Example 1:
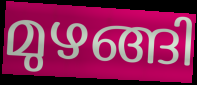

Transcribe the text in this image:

മുഴങ്ങി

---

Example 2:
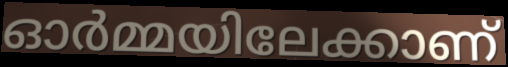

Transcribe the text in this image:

ഓർമ്മയിലേക്കാണ്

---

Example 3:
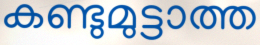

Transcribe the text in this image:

കണ്ടുമുട്ടാത്ത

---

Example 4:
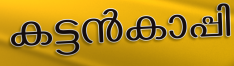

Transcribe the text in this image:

കട്ടൻകാപ്പി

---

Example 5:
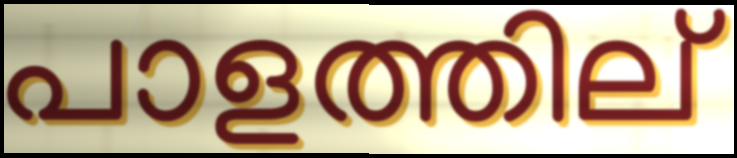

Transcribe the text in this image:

പാളത്തില്